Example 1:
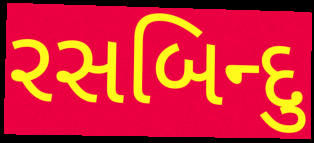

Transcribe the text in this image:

રસબિન્દુ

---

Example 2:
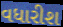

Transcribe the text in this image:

વધારીશ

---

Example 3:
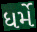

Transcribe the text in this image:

ધર્મે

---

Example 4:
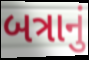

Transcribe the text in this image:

બત્રાનું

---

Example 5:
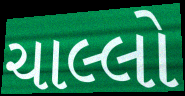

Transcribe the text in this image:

ચાલ્લો